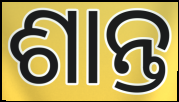
ଶାନ୍ତ